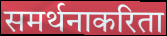
समर्थनाकरिता